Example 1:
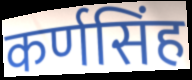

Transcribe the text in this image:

कर्णसिंह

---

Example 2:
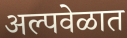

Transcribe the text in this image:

अल्पवेळात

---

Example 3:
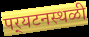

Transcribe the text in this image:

पर्यटनस्थळी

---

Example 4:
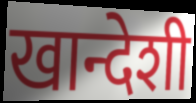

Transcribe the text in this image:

खान्देशी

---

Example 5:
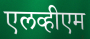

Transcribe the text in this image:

एलव्हीएम